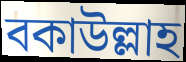
বকাউল্লাহ